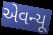
એવન્યૂ